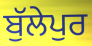
ਬੁੱਲੇਪੁਰ